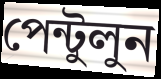
পেন্টুলুন